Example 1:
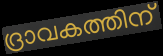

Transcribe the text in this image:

ദ്രാവകത്തിന്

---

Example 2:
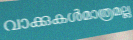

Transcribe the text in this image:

വാക്കുകൾമാത്രമല്ല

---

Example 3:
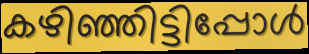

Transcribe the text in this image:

കഴിഞ്ഞിട്ടിപ്പോൾ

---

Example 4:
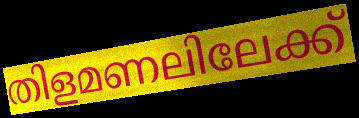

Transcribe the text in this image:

തിളമണലിലേക്ക്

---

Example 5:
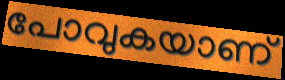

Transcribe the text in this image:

പോവുകയാണ്